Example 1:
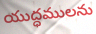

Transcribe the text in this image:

యుద్ధములను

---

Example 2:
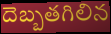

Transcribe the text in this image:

దెబ్బతగిలిన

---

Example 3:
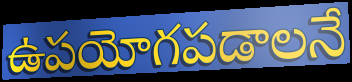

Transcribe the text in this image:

ఉపయోగపడాలనే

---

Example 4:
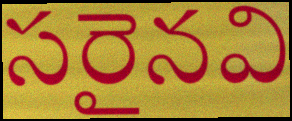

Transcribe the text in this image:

సరైనవి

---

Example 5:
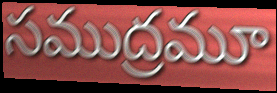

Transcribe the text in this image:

సముద్రమూ